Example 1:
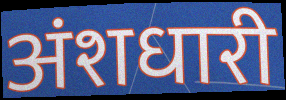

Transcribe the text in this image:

अंशधारी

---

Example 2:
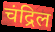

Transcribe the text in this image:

चंद्रिल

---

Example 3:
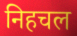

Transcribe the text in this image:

निहचल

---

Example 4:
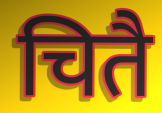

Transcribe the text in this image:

चितै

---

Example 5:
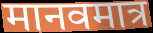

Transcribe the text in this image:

मानवमात्र